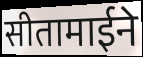
सीतामाईने